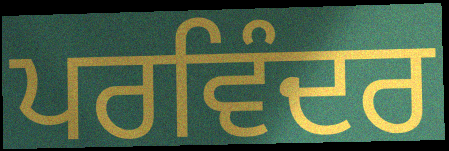
ਪਰਵਿੰਦਰ